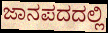
ಜಾನಪದದಲ್ಲಿ